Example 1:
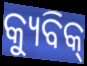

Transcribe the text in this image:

କ୍ୟୁବିକ୍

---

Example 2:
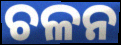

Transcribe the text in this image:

ଚଳନ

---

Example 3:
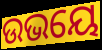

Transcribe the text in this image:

ଉଭୟେ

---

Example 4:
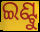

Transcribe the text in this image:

ଇଣ୍ଟୁ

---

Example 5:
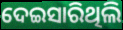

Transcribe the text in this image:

ଦେଇସାରିଥିଲି